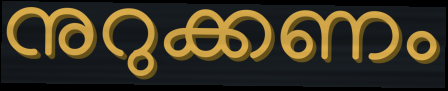
നുറുക്കണം